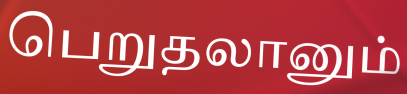
பெறுதலானும்